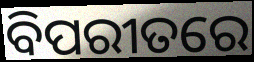
ବିପରୀତରେ